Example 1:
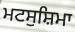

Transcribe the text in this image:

ਮਟਸੁਸ਼ਿਮਾ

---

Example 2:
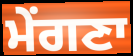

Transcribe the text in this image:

ਮੇਂਗਣਾ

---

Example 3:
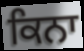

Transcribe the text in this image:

ਕਿਨਾ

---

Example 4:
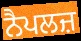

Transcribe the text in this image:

ਨੈਪਲਜ਼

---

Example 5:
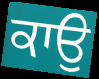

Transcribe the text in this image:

ਕਾਉ